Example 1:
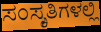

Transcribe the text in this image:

ಸಂಸ್ಕೃತಿಗಳಲ್ಲಿ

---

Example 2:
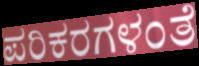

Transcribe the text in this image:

ಪರಿಕರಗಳಂತೆ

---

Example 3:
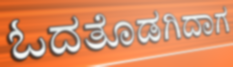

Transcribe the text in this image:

ಓದತೊಡಗಿದಾಗ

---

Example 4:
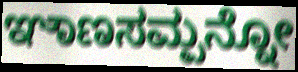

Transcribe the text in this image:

ಞಾಣಸಮ್ಪನ್ನೋ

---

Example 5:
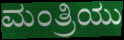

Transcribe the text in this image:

ಮಂತ್ರಿಯು